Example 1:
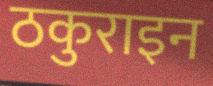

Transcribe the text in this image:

ठकुराइन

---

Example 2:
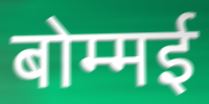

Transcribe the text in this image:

बोम्मई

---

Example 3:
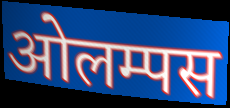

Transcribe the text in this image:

ओलम्पस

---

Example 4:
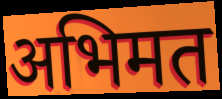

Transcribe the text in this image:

अभिमत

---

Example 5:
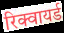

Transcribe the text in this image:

रिक्वायर्ड